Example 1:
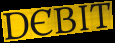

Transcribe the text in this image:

DEBIT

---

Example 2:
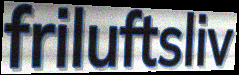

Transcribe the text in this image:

friluftsliv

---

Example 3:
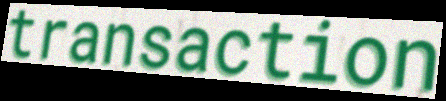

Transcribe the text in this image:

transaction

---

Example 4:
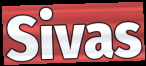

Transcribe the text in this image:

Sivas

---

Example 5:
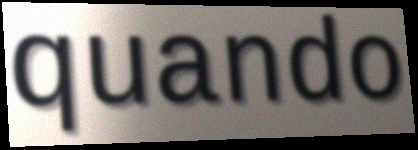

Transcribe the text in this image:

quando